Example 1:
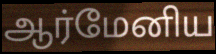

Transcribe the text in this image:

ஆர்மேனிய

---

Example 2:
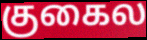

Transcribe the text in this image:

குகைல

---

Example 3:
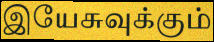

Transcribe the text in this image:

இயேசுவுக்கும்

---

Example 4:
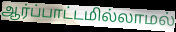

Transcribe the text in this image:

ஆர்ப்பாட்டமில்லாமல்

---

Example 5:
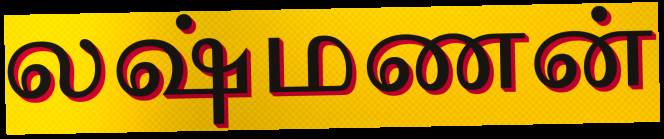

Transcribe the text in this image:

லஷ்மணன்